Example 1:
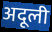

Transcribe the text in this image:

अदूली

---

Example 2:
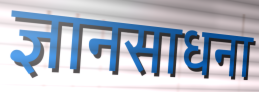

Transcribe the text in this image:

ज्ञानसाधना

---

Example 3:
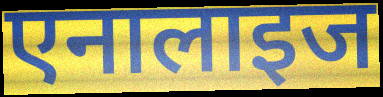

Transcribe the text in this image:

एनालाइज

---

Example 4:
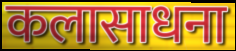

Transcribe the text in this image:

कलासाधना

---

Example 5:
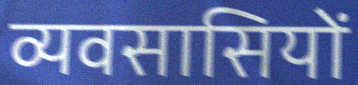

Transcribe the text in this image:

व्यवसासियों